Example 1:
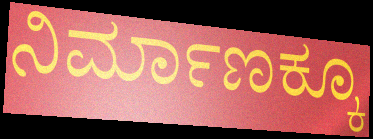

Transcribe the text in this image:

ನಿರ್ಮಾಣಕ್ಕೂ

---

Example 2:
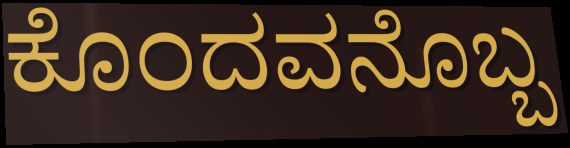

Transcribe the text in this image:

ಕೊಂದವನೊಬ್ಬ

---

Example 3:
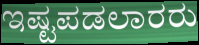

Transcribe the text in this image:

ಇಷ್ಟಪಡಲಾರರು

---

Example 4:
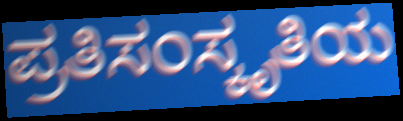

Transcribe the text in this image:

ಪ್ರತಿಸಂಸ್ಕೃತಿಯ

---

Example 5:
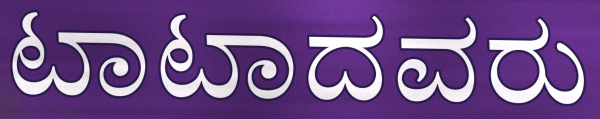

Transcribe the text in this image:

ಟಾಟಾದವರು